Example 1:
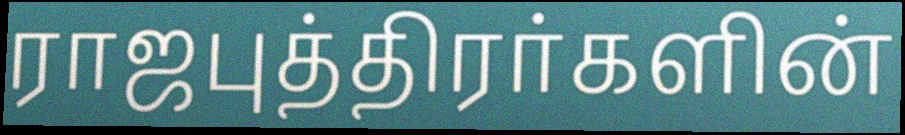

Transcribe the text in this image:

ராஜபுத்திரர்களின்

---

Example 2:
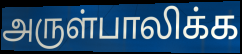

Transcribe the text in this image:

அருள்பாலிக்க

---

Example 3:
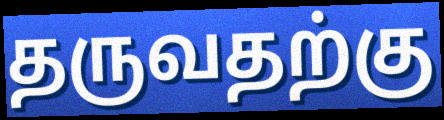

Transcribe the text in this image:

தருவதற்கு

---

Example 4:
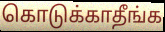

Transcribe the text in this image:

கொடுக்காதீங்க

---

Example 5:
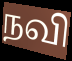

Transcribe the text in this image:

நவி